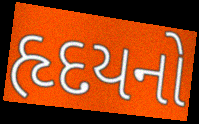
હૃદયનો